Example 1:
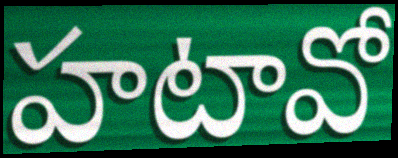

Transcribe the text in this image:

హటావో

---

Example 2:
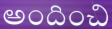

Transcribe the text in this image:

అందించి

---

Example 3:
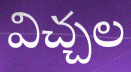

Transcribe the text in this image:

విచ్చల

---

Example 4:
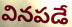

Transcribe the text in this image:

వినపడే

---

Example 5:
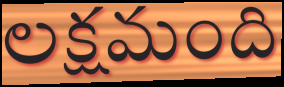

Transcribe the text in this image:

లక్షమంది